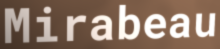
Mirabeau